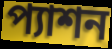
প্যাশন